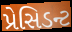
પ્રેસિડન્ટ